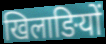
खिलाङियों